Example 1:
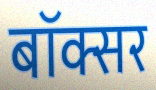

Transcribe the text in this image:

बॉक्सर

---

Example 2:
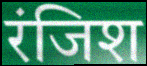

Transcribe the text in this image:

रंजिश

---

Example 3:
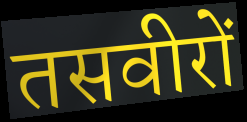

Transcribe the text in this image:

तसवीरों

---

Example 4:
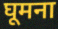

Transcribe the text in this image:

घूमना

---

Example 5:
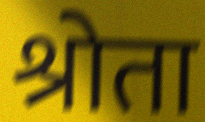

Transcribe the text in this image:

श्रोता